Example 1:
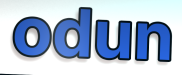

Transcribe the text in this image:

odun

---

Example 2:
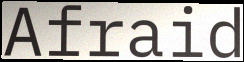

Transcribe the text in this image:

Afraid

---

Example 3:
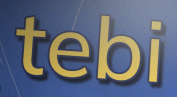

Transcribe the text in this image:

tebi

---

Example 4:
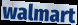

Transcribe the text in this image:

walmart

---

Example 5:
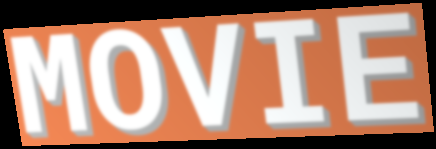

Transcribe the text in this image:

MOVIE